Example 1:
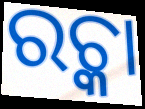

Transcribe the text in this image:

ରଚ୍କା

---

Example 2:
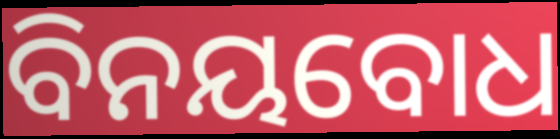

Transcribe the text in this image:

ବିନୟବୋଧ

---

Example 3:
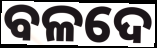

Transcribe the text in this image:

ବଳଦେ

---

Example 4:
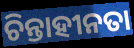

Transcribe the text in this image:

ଚିନ୍ତାହୀନତା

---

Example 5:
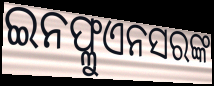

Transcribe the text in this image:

ଇନଫ୍ଳୁଏନସରଙ୍କ